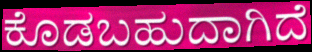
ಕೊಡಬಹುದಾಗಿದೆ